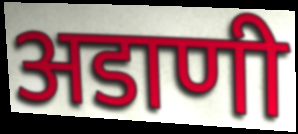
अडाणी